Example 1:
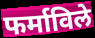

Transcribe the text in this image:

फर्माविले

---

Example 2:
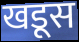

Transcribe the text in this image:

खडूस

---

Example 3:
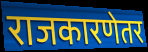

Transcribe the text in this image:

राजकारणेतर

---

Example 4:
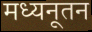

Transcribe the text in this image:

मध्यनूतन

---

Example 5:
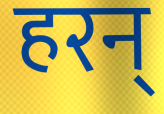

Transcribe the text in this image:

हरन्